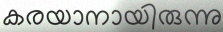
കരയാനായിരുന്നു